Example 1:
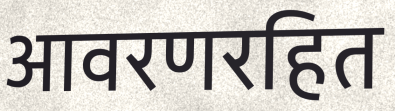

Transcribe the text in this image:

आवरणरहित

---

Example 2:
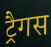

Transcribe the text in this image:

ट्रैगस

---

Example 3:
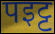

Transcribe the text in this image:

पइट्ट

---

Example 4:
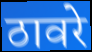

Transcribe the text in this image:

ठावरे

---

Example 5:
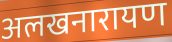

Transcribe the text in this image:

अलखनारायण